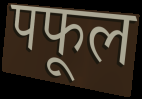
पफूल